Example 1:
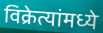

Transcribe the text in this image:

विक्रेत्यांमध्ये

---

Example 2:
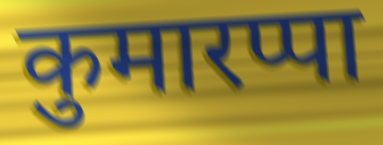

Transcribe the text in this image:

कुमारप्पा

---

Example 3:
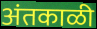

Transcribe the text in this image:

अंतकाळी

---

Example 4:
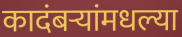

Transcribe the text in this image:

कादंबऱ्यांमधल्या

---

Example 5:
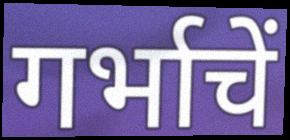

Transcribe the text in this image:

गर्भाचें